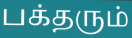
பக்தரும்